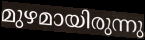
മുഴമായിരുന്നു